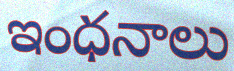
ఇంధనాలు